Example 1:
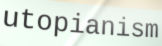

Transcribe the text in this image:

utopianism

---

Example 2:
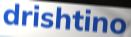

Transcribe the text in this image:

drishtino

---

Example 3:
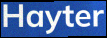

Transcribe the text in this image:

Hayter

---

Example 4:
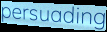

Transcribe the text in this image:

persuading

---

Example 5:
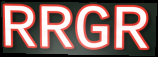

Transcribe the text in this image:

RRGR